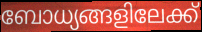
ബോധ്യങ്ങളിലേക്ക്